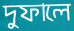
দুফালে